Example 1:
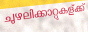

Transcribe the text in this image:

ചുഴലിക്കാറ്റുകള്ക്ക്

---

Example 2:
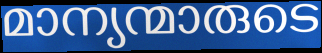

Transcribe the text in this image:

മാന്യന്മാരുടെ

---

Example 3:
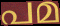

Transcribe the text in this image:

പമ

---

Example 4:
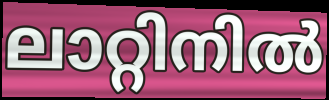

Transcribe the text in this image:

ലാറ്റിനിൽ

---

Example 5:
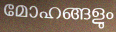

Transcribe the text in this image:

മോഹങ്ങളും